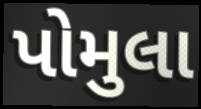
પોમુલા